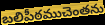
బలిపీఠముచెంతను